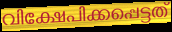
വിക്ഷേപിക്കപ്പെട്ടത്